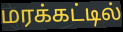
மரக்கட்டில்